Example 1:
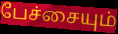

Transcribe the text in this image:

பேச்சையும்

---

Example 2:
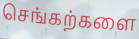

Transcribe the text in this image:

செங்கற்களை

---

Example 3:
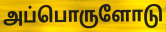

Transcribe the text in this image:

அப்பொருளோடு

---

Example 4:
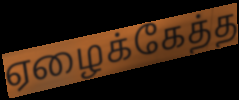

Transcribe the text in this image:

ஏழைக்கேத்த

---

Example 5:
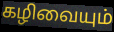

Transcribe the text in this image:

கழிவையும்